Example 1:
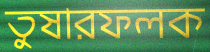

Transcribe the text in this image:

তুষারফলক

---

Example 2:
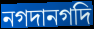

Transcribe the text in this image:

নগদানগদি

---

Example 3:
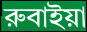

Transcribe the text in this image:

রুবাইয়া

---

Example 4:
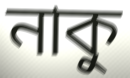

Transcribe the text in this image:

নাকু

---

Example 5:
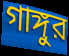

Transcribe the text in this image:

গাঙ্গুর